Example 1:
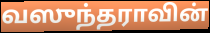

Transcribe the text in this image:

வஸுந்தராவின்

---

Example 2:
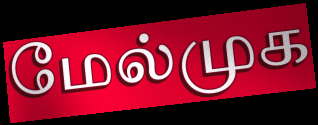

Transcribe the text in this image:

மேல்முக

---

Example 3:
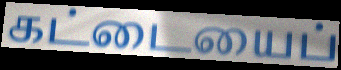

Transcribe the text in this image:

கட்டையைப்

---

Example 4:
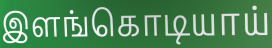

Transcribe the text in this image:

இளங்கொடியாய்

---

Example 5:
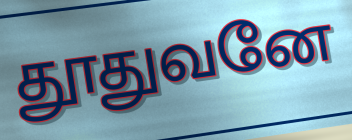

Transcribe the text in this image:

தூதுவனே